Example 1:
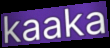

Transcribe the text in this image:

kaaka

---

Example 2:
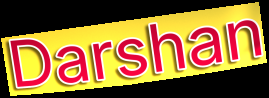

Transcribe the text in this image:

Darshan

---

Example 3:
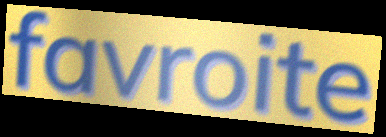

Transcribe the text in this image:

favroite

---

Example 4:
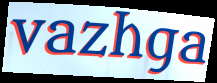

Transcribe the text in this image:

vazhga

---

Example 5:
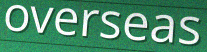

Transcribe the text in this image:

overseas